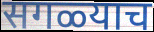
सगळ्याच